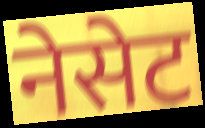
नेसेट